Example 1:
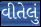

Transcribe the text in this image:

વીતેલું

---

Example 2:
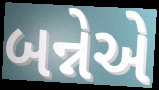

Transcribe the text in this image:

બન્નેએ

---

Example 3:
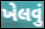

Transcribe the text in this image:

ખેલવું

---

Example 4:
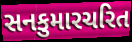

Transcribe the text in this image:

સનકુમારચરિત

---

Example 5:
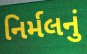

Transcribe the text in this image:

નિર્મલનું